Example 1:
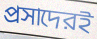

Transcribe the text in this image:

প্রসাদেরই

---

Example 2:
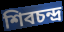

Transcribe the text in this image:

শিবচন্দ্র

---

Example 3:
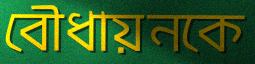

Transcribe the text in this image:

বৌধায়নকে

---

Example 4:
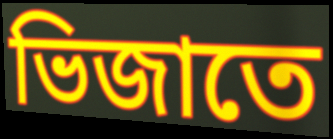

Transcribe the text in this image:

ভিজাতে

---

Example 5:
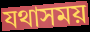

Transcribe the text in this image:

যথাসময়